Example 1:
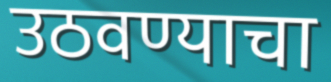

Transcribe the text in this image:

उठवण्याचा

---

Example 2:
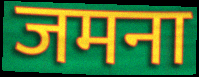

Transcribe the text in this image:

जमना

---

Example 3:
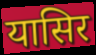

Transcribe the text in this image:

यासिर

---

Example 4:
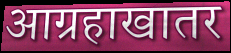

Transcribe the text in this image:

आग्रहाखातर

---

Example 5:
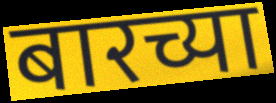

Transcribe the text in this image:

बारच्या